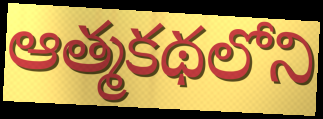
ఆత్మకథలోని